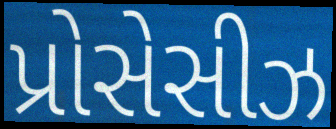
પ્રોસેસીઝ